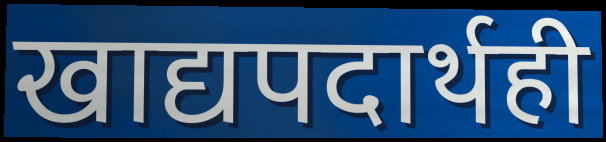
खाद्यपदार्थही